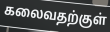
கலைவதற்குள்